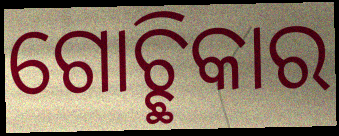
ଗୋଚ୍ଛିକାର